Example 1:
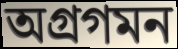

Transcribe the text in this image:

অগ্রগমন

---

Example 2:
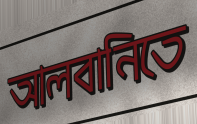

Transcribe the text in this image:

আলবানিতে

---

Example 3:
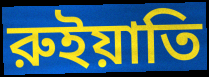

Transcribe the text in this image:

রুইয়াতি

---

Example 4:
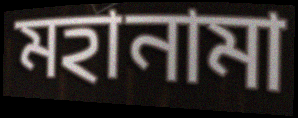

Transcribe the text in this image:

মহানামা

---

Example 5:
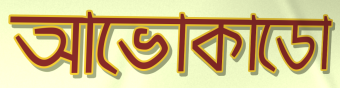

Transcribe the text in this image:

আভোকাডো